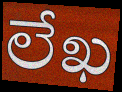
లేఖ